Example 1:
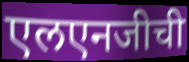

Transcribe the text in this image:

एलएनजीची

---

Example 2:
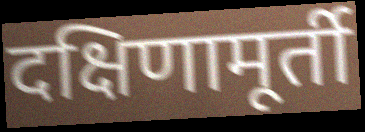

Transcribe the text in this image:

दक्षिणामूर्ती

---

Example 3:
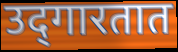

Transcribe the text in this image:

उद्‌गारतात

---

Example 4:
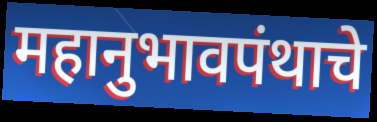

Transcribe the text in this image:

महानुभावपंथाचे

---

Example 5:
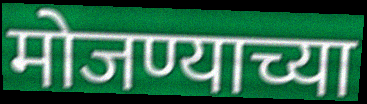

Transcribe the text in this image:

मोजण्याच्या